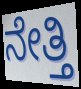
ನೇತ್ತಿ